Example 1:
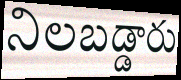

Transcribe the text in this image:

నిలబడ్డారు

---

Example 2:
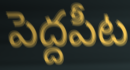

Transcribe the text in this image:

పెద్దపీట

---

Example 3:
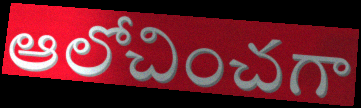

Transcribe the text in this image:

ఆలోచించగా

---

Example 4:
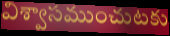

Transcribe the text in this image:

విశ్వాసముంచుటకు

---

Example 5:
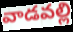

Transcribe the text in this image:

వాడవల్లి